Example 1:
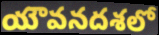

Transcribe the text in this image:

యౌవనదశలో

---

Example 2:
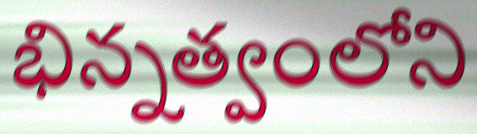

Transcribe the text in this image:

భిన్నత్వంలోని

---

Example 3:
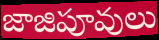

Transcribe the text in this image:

జాజిపూవులు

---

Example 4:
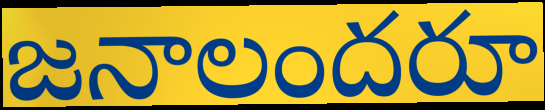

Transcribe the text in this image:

జనాలందరూ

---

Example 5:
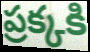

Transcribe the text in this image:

ప్రక్కకి